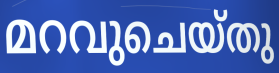
മറവുചെയ്തു